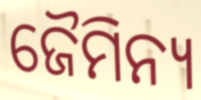
ଜୈମିନ୍ୟ